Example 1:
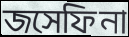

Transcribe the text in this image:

জসেফিনা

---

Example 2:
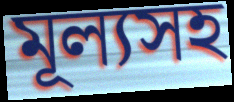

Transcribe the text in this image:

মূল্যসহ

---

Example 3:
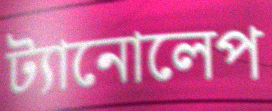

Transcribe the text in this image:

ট্যানোলেপ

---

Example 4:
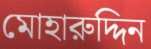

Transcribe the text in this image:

মোহারুদ্দিন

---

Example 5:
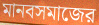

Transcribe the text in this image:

মানবসমাজের